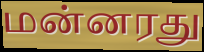
மன்னரது